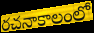
రచనాకాలంలో